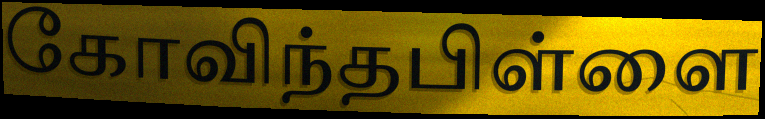
கோவிந்தபிள்ளை